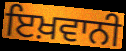
ਇਖ਼ਵਾਨੀ